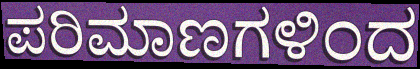
ಪರಿಮಾಣಗಳಿಂದ